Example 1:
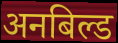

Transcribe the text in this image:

अनबिल्ड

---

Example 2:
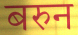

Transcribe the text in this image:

बरुन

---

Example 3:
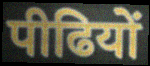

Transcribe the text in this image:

पीढियों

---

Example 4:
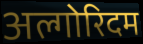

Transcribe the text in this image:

अल्गोरिदम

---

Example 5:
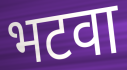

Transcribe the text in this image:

भटवा